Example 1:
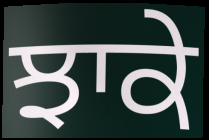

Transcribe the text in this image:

ਝਾਕੇ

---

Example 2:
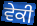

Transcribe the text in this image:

ਵੇਕੀ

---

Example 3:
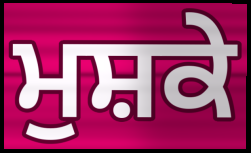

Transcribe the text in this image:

ਮੁਸ਼ਕੇ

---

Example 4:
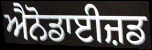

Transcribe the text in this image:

ਐਨੋਡਾਈਜ਼ਡ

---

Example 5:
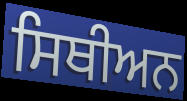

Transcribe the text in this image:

ਸਿਥੀਅਨ